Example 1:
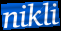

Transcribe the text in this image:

nikli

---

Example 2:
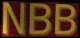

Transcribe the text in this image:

NBB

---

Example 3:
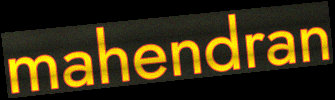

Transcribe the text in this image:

mahendran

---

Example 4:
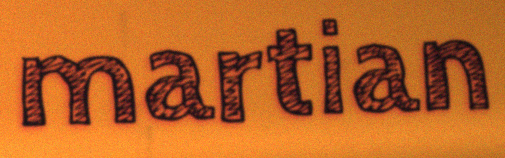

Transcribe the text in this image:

martian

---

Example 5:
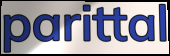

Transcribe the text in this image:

parittal